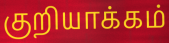
குறியாக்கம்